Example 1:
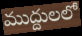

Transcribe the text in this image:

ముద్దులలో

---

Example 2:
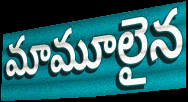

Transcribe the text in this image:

మామూలైన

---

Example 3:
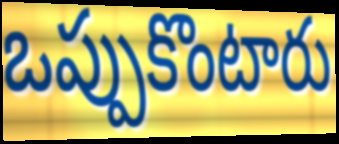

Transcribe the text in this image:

ఒప్పుకొంటారు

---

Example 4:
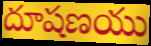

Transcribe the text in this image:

దూషణయు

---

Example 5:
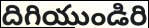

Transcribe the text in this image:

దిగియుండిరి